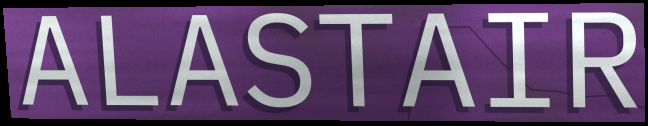
ALASTAIR